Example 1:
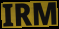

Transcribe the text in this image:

IRM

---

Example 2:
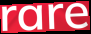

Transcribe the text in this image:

rare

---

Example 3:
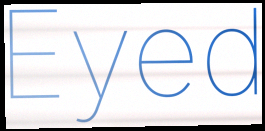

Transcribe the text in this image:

Eyed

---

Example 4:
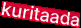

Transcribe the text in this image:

kuritaada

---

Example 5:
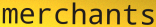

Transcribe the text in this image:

merchants